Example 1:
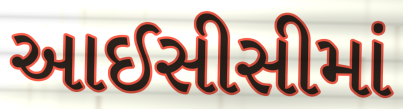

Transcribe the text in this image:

આઈસીસીમાં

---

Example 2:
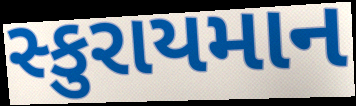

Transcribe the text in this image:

સ્કુરાયમાન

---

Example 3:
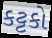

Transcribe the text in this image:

કટ્ટકો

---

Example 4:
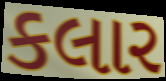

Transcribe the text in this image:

કલાર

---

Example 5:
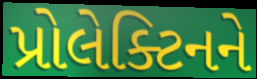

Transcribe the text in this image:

પ્રોલેક્ટિનને